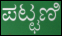
ಪಟ್ಟಣಿ